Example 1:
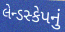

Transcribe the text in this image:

લેન્ડસ્કેપનું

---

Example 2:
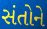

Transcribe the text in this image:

સંતોને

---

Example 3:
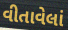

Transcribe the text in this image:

વીતાવેલાં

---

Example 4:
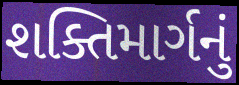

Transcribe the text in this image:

શક્તિમાર્ગનું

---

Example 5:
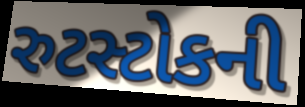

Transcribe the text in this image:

રુટસ્ટોકની